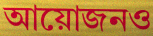
আয়োজনও